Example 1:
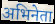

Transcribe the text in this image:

अभिनेता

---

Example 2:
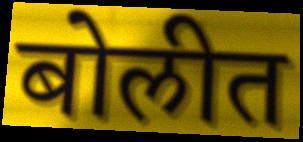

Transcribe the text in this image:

बोलीत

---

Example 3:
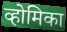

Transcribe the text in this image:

व्होमिका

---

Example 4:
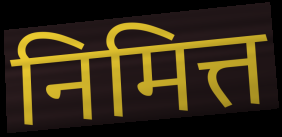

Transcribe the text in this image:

निमित्त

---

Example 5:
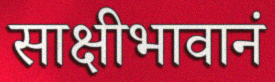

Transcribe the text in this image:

साक्षीभावानं